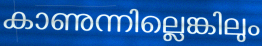
കാണുന്നില്ലെങ്കിലും